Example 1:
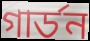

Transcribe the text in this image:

গার্ডন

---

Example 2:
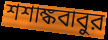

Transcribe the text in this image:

শশাঙ্কবাবুর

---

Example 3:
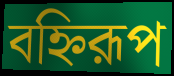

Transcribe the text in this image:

বহ্নিরূপ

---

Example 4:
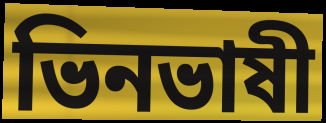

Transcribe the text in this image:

ভিনভাষী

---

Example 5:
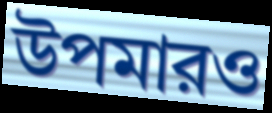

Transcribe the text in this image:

উপমারও